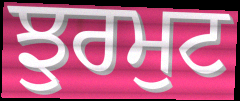
ਝੁਰਮੁਟ